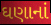
ઘણાનાં